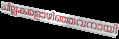
ചില്ലകളൊഴിഞ്ഞവനായി